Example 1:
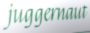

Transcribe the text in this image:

juggernaut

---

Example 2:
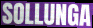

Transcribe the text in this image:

SOLLUNGA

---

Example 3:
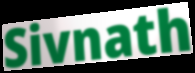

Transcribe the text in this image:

Sivnath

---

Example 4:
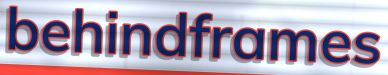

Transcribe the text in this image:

behindframes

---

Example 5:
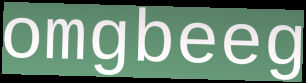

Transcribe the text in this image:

omgbeeg